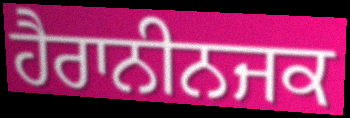
ਹੈਰਾਨੀਨਜਕ